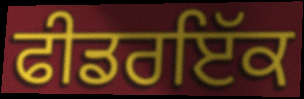
ਫੀਡਰਇੱਕ